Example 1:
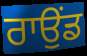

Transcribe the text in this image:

ਰਾਉਂਡ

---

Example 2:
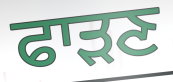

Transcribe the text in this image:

ਫਾੜਣ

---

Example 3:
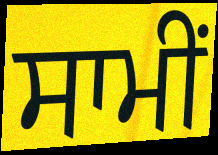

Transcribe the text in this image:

ਸਾਮੀਂ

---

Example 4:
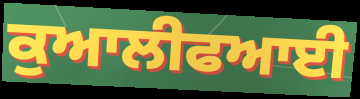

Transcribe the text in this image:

ਕੁਆਲੀਫਆਈ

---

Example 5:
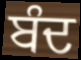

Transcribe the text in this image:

ਬੰਦ